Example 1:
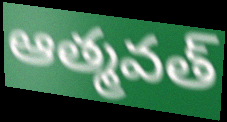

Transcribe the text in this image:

ఆత్మవత్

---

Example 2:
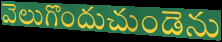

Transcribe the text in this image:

వెలుగొందుచుండెను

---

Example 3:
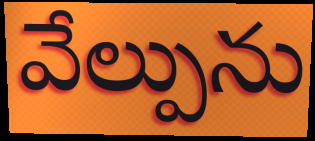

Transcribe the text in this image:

వేల్పును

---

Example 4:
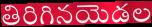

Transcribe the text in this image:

తిరిగినయెడల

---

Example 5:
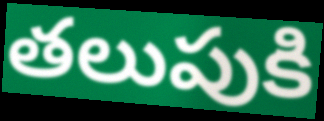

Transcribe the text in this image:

తలుపుకి